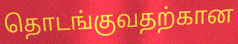
தொடங்குவதற்கான